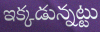
ఇక్కడున్నట్టు